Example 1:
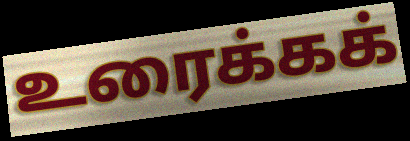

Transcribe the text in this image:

உரைக்கக்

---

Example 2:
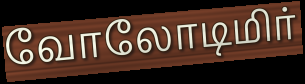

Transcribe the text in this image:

வோலோடிமிர்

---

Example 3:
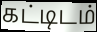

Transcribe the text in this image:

கட்டிடம்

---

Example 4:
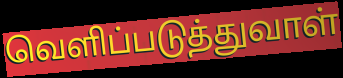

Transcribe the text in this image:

வெளிப்படுத்துவாள்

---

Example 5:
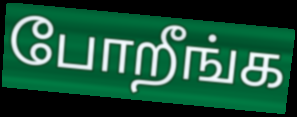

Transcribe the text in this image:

போறீங்க